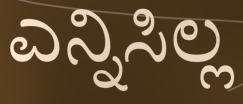
ಎನ್ನಿಸಿಲ್ಲ